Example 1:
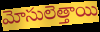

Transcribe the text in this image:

మోసులెత్తాయి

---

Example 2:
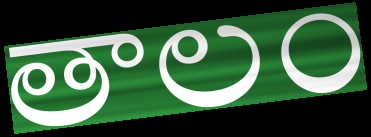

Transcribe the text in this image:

తాలం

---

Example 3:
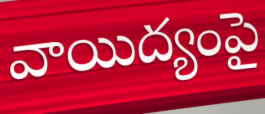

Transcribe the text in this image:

వాయిద్యంపై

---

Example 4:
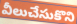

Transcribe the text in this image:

వీలుచేసుకొని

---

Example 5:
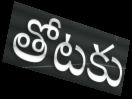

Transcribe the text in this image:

తోటకు